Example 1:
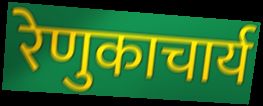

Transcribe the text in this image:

रेणुकाचार्य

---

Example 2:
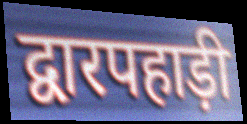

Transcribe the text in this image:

द्वारपहाड़ी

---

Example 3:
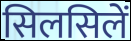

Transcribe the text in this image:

सिलसिलें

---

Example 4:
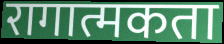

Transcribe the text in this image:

रागात्मकता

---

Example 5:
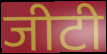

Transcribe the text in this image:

जीटी